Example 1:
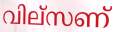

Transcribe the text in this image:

വില്സണ്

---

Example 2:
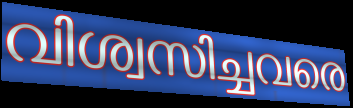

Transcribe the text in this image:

വിശ്വസിച്ചവരെ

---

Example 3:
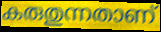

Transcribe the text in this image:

കരുതുന്നതാണ്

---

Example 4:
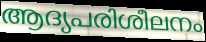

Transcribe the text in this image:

ആദ്യപരിശീലനം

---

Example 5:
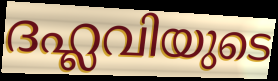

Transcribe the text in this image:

ദഹ്ലവിയുടെ